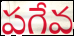
పగేవ